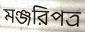
মঞ্জরিপত্র